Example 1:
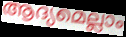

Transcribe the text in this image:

ആദ്യമെല്ലാം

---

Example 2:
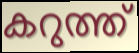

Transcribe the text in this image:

കറുത്ത്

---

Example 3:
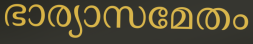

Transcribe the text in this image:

ഭാര്യാസമേതം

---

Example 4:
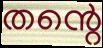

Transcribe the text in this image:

തന്റെ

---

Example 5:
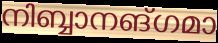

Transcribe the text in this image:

നിബ്ബാനങ്ഗമാ